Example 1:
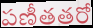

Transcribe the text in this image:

పణీతతరో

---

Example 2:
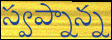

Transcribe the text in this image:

స్వప్నాన్న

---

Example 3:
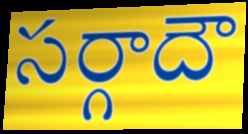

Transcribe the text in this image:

సర్గాదౌ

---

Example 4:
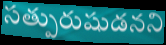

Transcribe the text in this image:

సత్పురుషుడనని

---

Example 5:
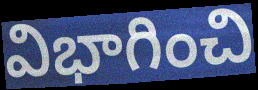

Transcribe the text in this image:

విభాగించి